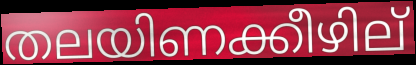
തലയിണക്കീഴില്